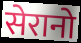
सेरानो